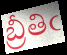
బ్రీతిఁ